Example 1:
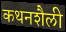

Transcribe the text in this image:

कथनशैली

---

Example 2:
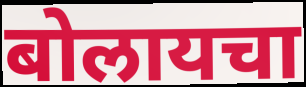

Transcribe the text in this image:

बोलायचा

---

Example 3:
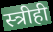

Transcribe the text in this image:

स्त्रीही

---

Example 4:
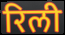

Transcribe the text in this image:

रिली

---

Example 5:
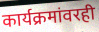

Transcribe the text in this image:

कार्यक्रमांवरही